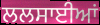
ਲਲਸਾਈਆਂ